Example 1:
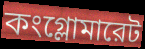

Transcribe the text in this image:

কংগ্লোমারেট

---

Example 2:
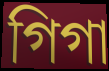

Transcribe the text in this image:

গিগা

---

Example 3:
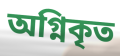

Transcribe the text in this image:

অগ্নিকৃত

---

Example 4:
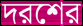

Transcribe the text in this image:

দরশের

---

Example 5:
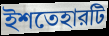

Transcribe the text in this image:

ইশতেহারটি